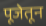
पूजेतून